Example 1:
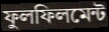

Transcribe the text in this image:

ফুলফিলমেন্ট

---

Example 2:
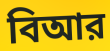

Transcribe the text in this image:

বিআর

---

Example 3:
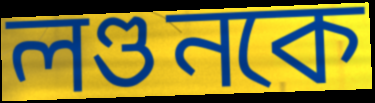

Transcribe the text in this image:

লণ্ডনকে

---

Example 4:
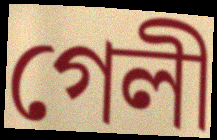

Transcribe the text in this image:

গেলী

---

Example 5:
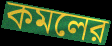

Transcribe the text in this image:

কমলের